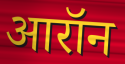
आरॉन